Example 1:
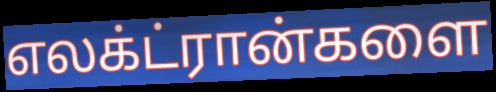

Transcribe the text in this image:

எலக்ட்ரான்களை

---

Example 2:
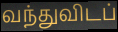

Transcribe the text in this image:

வந்துவிடப்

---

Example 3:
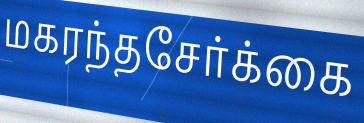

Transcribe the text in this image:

மகரந்தசேர்க்கை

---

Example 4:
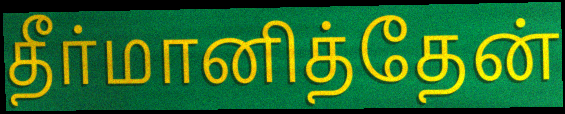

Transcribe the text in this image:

தீர்மானித்தேன்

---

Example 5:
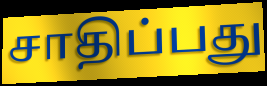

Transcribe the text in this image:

சாதிப்பது